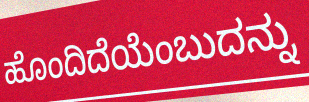
ಹೊಂದಿದೆಯೆಂಬುದನ್ನು